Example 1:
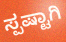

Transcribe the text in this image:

ಸ್ಪಷ್ಟಾಗಿ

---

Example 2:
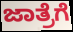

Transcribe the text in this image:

ಜಾತ್ರೆಗೆ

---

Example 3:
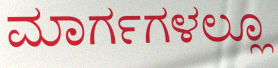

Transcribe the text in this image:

ಮಾರ್ಗಗಳಲ್ಲೂ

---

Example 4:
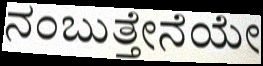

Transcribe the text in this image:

ನಂಬುತ್ತೇನೆಯೇ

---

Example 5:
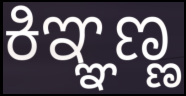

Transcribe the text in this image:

ಕಿಞ್ಞಣ್ಣ